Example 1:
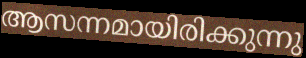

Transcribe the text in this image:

ആസന്നമായിരിക്കുന്നു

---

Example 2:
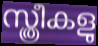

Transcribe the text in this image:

സ്ത്രീകളു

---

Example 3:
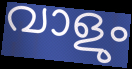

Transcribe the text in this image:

വാളും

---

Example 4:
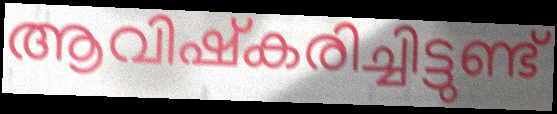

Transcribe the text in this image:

ആവിഷ്കരിച്ചിട്ടുണ്ട്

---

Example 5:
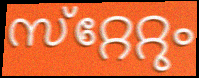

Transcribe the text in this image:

സ്‌റ്റേറ്റും